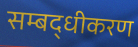
सम्बद्धीकरण